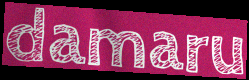
damaru